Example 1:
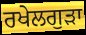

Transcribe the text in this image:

ਰਖੇਲਗੁੜਾ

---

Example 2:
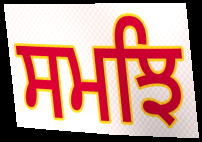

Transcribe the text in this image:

ਸਮਝਿ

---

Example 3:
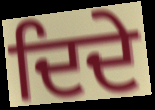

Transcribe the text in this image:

ਦਿਦੇ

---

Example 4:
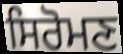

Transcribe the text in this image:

ਸਿਰੋਮਣ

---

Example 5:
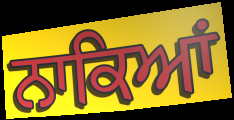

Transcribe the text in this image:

ਨਾਕਿਆਂ